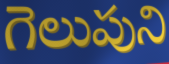
గెలుపుని